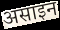
असाइन